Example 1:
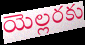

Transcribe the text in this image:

యెల్లరకు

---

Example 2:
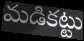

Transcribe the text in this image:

మడికట్టు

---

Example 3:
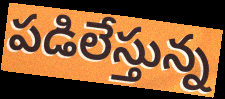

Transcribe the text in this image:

పడిలేస్తున్న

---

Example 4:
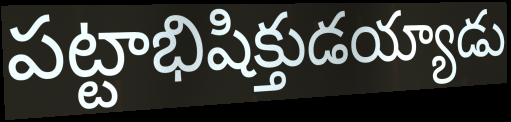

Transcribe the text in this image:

పట్టాభిషిక్తుడయ్యాడు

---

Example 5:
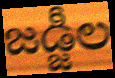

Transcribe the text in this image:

జడ్జీల